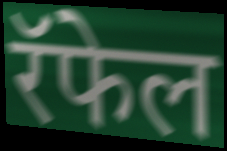
रॅफेल